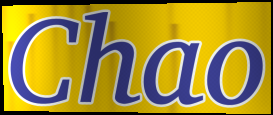
Chao